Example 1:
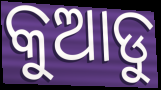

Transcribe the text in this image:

କୁଆଡୁ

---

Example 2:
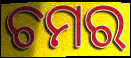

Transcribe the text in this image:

ଚମର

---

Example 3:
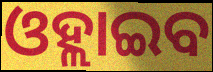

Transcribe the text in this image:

ଓହ୍ଲାଇବ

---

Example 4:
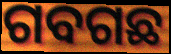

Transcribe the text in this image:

ଗବଗଛ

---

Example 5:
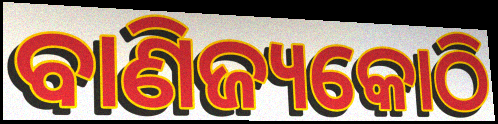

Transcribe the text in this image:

ବାଣିଜ୍ୟକୋଠି